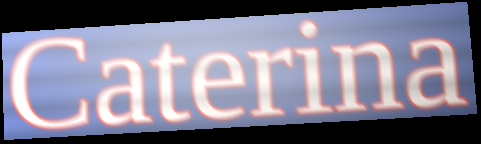
Caterina